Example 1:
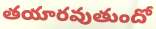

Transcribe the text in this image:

తయారవుతుందో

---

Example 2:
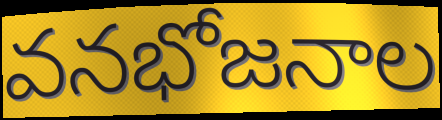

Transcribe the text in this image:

వనభోజనాల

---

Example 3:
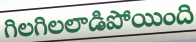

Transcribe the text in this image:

గిలగిలలాడిపోయింది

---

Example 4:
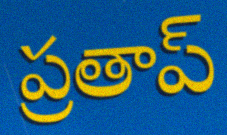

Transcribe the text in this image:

ప్రతాప్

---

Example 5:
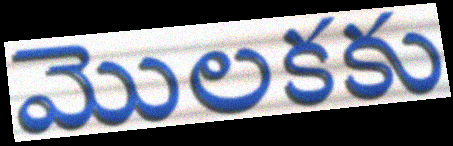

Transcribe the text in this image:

మొలకకు